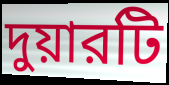
দুয়ারটি